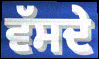
ਵੱਸਦੇ